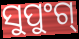
ସୁପୁଂଗ୍